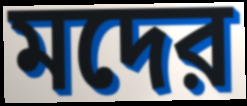
মদের